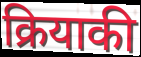
क्रियाकी